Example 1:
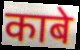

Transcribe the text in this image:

काबे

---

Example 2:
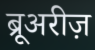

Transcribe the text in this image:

ब्रूअरीज़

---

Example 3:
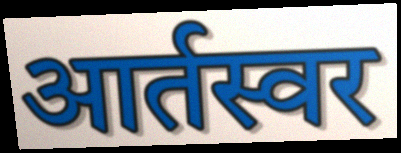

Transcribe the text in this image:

आर्तस्वर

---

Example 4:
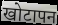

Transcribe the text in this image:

खोटापन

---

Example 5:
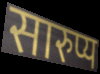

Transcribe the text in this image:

सारुप्य